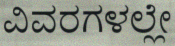
ವಿವರಗಳಲ್ಲೇ